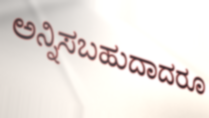
ಅನ್ನಿಸಬಹುದಾದರೂ